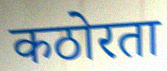
कठोरता